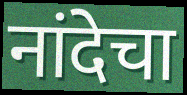
नांदेचा